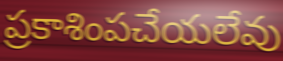
ప్రకాశింపచేయలేవు